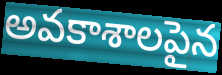
అవకాశాలపైన